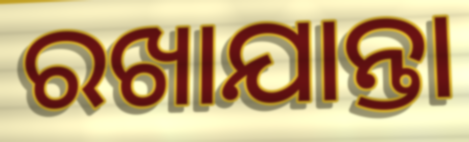
ରଖାଯାନ୍ତା